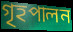
গৃহপালন